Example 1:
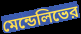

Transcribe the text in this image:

মেন্ডেলিভের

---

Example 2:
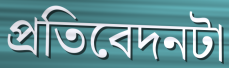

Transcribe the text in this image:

প্রতিবেদনটা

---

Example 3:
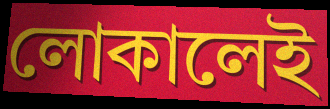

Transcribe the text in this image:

লোকালেই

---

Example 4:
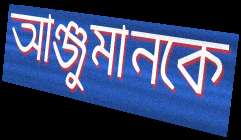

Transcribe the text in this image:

আঞ্জুমানকে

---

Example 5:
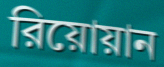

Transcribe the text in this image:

রিয়োয়ান